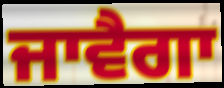
ਜਾਵੈਗਾ